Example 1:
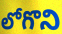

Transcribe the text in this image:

లోగొని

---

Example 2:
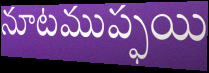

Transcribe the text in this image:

నూటముప్ఫయి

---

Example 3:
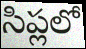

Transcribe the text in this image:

సిప్లలో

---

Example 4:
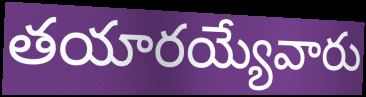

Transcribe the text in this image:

తయారయ్యేవారు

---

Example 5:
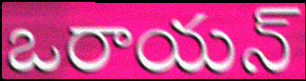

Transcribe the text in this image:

ఒరాయన్